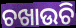
ଚଖାଉଚି